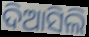
ଦିଆସିଲି